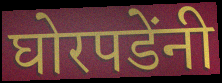
घोरपडेंनी